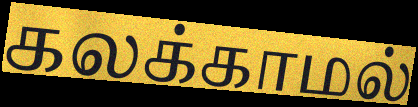
கலக்காமல்